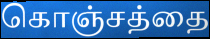
கொஞ்சத்தை